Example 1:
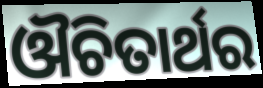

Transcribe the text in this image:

ଔଚିତାର୍ଥର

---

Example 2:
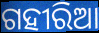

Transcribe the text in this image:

ଗହୀରିଆ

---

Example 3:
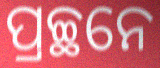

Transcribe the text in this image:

ପ୍ରଚ୍ଛନେ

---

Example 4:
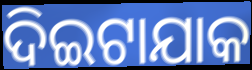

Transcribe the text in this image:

ଦିଇଟାଯାକ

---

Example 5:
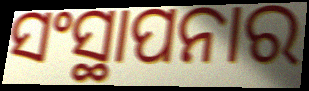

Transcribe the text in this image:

ସଂସ୍ଥାପନାର